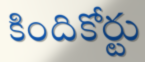
కిందికోర్టు